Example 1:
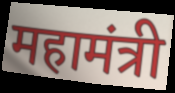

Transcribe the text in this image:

महामंत्री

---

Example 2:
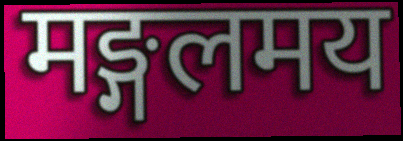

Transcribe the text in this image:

मङ्गलमय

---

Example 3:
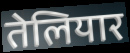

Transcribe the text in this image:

तेलियार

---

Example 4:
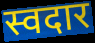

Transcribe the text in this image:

स्वदार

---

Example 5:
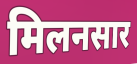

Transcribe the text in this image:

मिलनसार